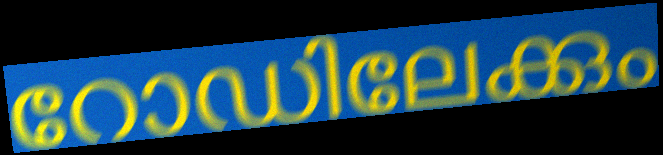
റോഡിലേക്കും